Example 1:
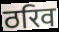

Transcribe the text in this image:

ठरिव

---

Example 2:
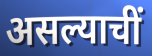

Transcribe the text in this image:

असल्याचीं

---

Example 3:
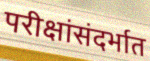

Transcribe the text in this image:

परीक्षांसंदर्भात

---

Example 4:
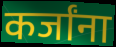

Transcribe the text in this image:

कर्जांना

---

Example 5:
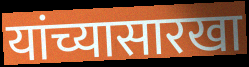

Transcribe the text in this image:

यांच्यासारखा